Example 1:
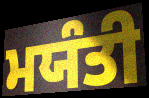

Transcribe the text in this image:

ਮਯੰਤੀ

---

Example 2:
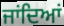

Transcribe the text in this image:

ਜਾਂਦਿਆਂ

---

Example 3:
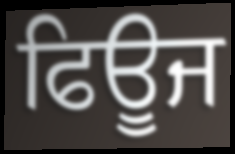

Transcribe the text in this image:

ਫਿਊਜ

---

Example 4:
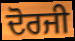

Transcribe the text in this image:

ਦੋਰਜੀ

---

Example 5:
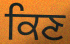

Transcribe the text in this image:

ਕਿਣ